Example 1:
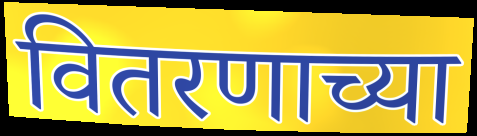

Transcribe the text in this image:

वितरणाच्या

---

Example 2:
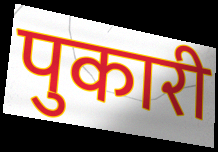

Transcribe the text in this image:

पुकारी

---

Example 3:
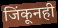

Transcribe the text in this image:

जिंकूनही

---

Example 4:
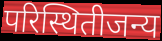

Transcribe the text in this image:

परिस्थितीजन्य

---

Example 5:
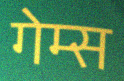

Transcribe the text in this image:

गेम्स